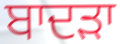
ਬਾਦੜਾ